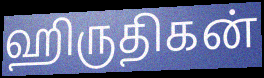
ஹிருதிகன்